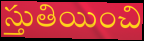
స్తుతియించి